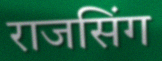
राजसिंग